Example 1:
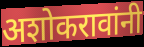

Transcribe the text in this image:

अशोकरावांनी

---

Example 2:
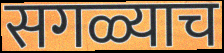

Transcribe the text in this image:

सगळ्याच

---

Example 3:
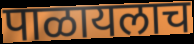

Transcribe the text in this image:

पाळायलाच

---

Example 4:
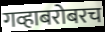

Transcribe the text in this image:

गव्हाबरोबरच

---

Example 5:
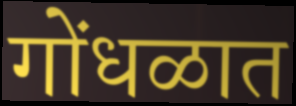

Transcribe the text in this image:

गोंधळात